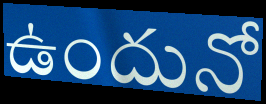
ఉందునో